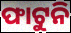
ଫାଟୁନି